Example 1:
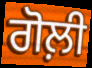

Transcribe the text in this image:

ਗੋਲ਼ੀ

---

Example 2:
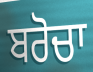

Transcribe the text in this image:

ਬਰੋਚਾ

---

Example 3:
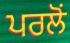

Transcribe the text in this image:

ਪਰਲੋਂ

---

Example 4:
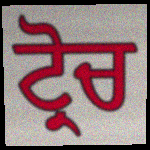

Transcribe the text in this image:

ਟ੍ਰੋਚ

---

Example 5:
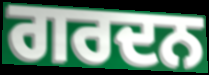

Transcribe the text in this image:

ਗਰਦਨ